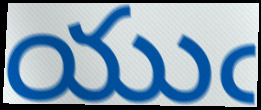
యుఁ